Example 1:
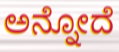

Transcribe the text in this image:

ಅನ್ನೋದೆ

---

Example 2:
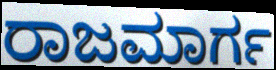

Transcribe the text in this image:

ರಾಜಮಾರ್ಗ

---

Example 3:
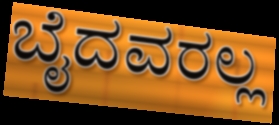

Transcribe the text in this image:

ಬೈದವರಲ್ಲ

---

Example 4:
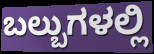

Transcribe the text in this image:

ಬಲ್ಬುಗಳಲ್ಲಿ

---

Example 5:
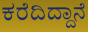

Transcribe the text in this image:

ಕರೆದಿದ್ದಾನೆ